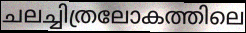
ചലച്ചിത്രലോകത്തിലെ